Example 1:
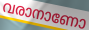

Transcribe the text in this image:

വരാനാണോ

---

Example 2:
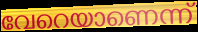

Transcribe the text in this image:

വേറെയാണെന്ന്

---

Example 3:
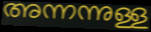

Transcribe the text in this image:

അന്നന്നുള്ള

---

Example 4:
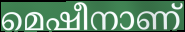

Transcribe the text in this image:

മെഷീനാണ്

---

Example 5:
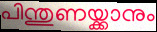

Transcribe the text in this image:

പിന്തുണയ്ക്കാനും